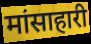
मांसाहारी